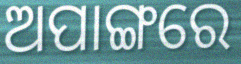
ଅପାଙ୍ଗରେ